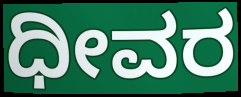
ಧೀವರ